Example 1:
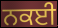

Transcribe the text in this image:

ਨਕਈ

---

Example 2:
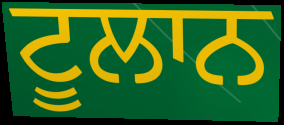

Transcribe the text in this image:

ਟੂਲਾਨ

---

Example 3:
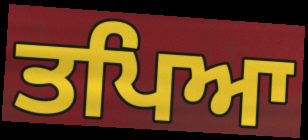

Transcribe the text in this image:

ਤਪਿਆ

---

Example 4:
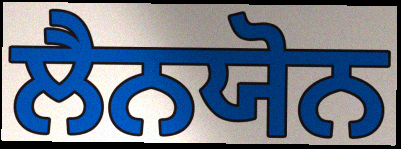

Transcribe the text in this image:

ਲੈਨਯੋਨ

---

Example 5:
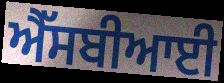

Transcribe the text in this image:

ਐੱਸਬੀਆਈ